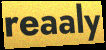
reaaly